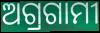
ଅଗ୍ରଗାମୀ